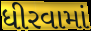
ધીરવામાં